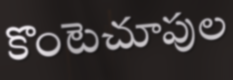
కొంటెచూపుల